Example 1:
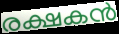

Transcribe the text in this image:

രക്ഷകൻ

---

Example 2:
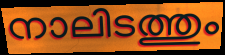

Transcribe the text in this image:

നാലിടത്തും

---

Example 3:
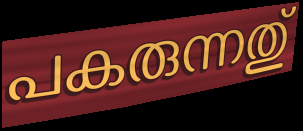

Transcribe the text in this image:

പകരുന്നതു്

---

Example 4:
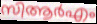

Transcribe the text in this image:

സിആർഎം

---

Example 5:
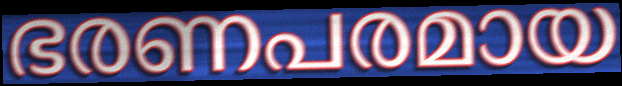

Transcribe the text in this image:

ഭരണപരമായ